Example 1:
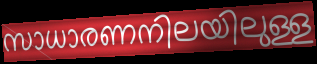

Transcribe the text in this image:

സാധാരണനിലയിലുള്ള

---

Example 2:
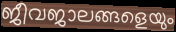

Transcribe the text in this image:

ജീവജാലങ്ങളെയും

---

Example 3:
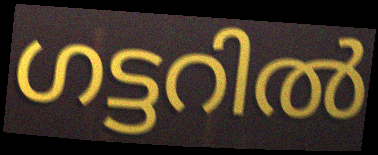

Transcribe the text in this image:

ഗട്ടറിൽ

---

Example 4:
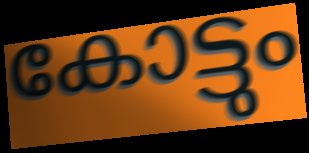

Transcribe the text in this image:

കോട്ടും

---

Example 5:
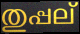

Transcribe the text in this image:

തുപ്പല്